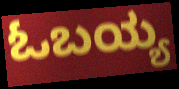
ಓಬಯ್ಯ